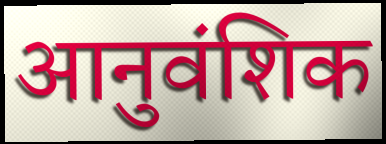
आनुवंशिक